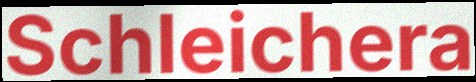
Schleichera